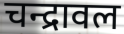
चन्द्रावल